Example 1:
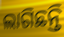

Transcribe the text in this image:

ଲାଗିଛନ୍ତି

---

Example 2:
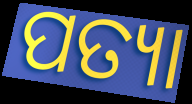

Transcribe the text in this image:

ପତ୍ୟା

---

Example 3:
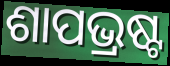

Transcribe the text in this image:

ଶାପଭ୍ରଷ୍ଟ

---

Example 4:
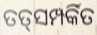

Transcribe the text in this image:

ତତ୍‌ସମ୍ପର୍କିତ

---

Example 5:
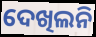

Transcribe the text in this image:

ଦେଖିଲନି